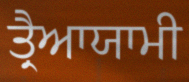
ਤ੍ਰੈਆਯਾਮੀ